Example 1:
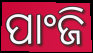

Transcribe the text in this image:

ପାଂଜି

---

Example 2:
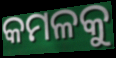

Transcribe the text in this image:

କମଳକୁ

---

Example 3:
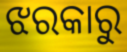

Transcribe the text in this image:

ଝରକାରୁ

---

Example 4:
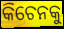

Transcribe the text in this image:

କିଚେନକୁ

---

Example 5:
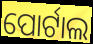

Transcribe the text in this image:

ପୋର୍ଟାଲ